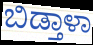
ಬಿಡ್ತಾಳಾ